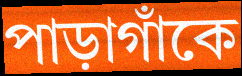
পাড়াগাঁকে